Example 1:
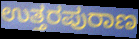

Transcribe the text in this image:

ಉತ್ತರಪುರಾಣ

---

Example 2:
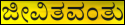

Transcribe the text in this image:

ಜೀವಿತವಂತು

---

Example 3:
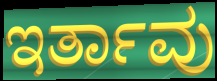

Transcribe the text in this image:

ಇರ್ತಾವು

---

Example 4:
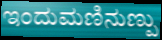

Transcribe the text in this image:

ಇಂದುಮಣಿನುಣ್ಪು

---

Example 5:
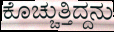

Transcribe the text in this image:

ಕೊಚ್ಚುತ್ತಿದ್ದನು